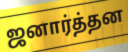
ஜனார்த்தன